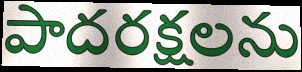
పాదరక్షలను